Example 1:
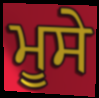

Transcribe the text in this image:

ਮੂਸੇ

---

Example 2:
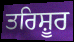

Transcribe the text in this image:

ਤਰਿਸ਼ੂਰ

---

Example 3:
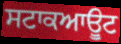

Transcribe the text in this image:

ਸਟਾਕਆਊਟ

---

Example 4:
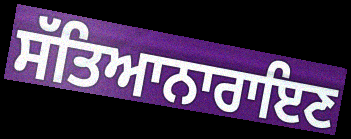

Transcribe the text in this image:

ਸੱਤਿਆਨਾਰਾਇਣ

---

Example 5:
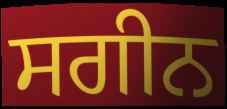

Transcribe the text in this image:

ਸਗੀਨ